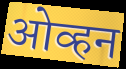
ओव्हन